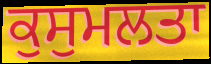
ਕੁਸੁਮਲਤਾ